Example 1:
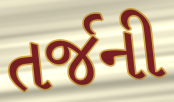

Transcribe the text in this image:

તર્જની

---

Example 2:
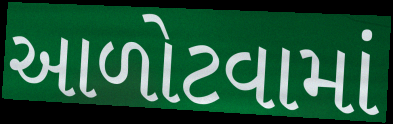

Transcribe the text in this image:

આળોટવામાં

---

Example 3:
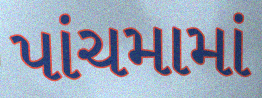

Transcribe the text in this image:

પાંચમામાં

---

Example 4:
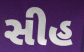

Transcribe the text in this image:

સીહ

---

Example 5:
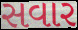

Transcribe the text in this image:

સવાર